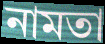
নামতা